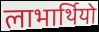
लाभार्थियो